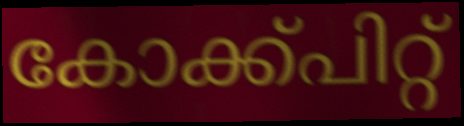
കോക്ക്പിറ്റ്